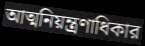
আত্মনিয়ন্ত্রণাধিকার